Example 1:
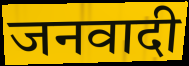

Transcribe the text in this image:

जनवादी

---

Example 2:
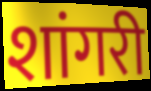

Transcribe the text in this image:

शांगरी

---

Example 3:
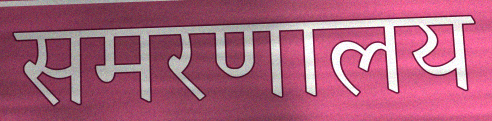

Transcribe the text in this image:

समरणालय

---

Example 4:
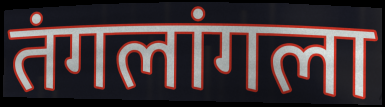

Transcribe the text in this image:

तंगलांगला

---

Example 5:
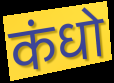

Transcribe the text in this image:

कंधो